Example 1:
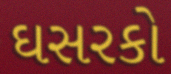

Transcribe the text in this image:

ઘસરકો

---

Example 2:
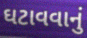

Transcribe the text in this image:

ઘટાવવાનું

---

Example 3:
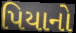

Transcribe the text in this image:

પિયાનો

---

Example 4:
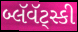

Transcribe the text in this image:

બ્લૅવૅટ્સ્કી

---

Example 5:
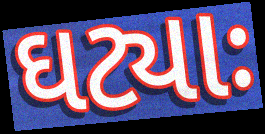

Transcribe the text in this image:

ઘટ્યાઃ